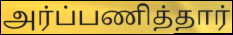
அர்ப்பணித்தார்